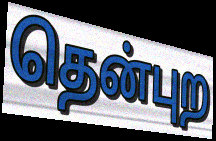
தென்புற